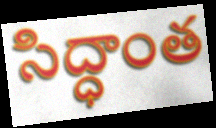
సిద్ధాంత